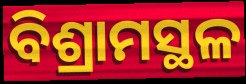
ବିଶ୍ରାମସ୍ଥଳ